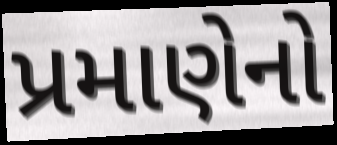
પ્રમાણેનો